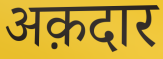
अक़दार